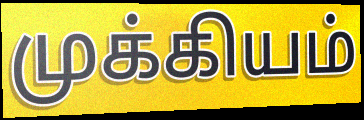
முக்கியம்